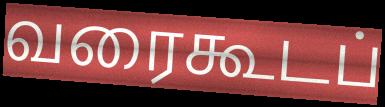
வரைகூடப்